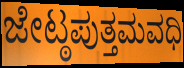
ಜೇಟ್ಠಪುತ್ತಮವಧಿ